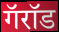
गॅरॉड